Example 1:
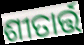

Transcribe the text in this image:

ଶୀତାର୍ତ୍ତ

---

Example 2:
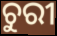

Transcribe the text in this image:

ଚୁରୀ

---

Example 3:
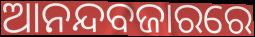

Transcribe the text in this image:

ଆନନ୍ଦବଜାରରେ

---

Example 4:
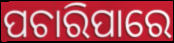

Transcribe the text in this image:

ପଚାରିପାରେ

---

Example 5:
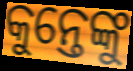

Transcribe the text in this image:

କୁନ୍ତେଙ୍କୁ